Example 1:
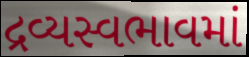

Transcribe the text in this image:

દ્રવ્યસ્વભાવમાં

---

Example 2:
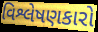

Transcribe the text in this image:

વિશ્લેષણકારો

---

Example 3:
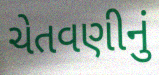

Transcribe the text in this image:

ચેતવણીનું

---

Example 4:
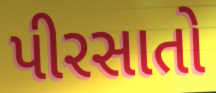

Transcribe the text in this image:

પીરસાતો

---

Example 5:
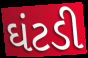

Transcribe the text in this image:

ઘંટડી